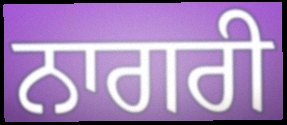
ਨਾਗਰੀ